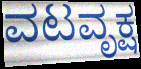
ವಟವೃಕ್ಷ